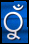
ଠୁଁ